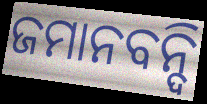
ଜମାନବନ୍ଦି